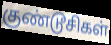
குண்டூசிகள்